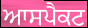
ਆਸਪੈਕਟ